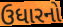
ઉધારનો